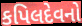
કપિલદેવનો